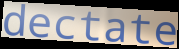
dectate